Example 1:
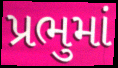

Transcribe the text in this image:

પ્રભુમાં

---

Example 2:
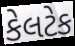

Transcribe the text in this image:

કેલટેક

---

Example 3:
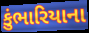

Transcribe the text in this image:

કુંભારિયાના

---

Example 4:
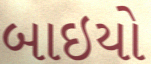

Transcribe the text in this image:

બાઇયો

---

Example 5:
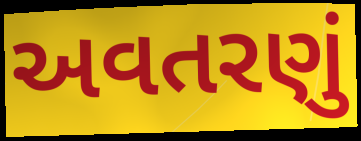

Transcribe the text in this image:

અવતરણું